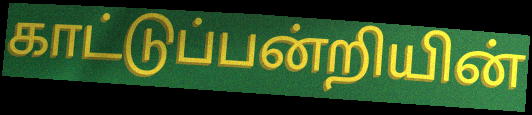
காட்டுப்பன்றியின்